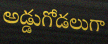
అడ్డుగోడలుగా